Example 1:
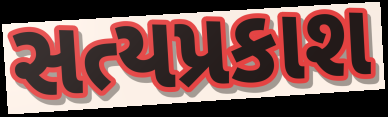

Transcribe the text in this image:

સત્યપ્રકાશ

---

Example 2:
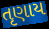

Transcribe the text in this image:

તૃણાય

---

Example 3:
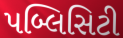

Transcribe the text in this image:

પબ્લિસિટી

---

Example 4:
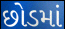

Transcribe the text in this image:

છોડમાં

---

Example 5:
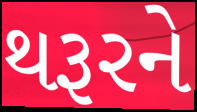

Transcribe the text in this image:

થરૂરને